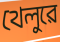
থেলুৱে